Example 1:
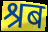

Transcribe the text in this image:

श्रब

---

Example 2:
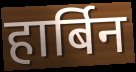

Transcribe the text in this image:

हार्बिन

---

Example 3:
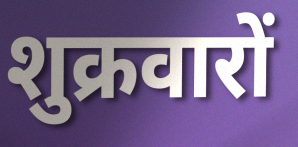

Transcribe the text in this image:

शुक्रवारों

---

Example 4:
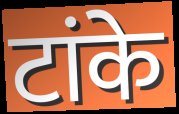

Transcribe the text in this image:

टांके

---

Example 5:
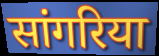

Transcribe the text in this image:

सांगरिया